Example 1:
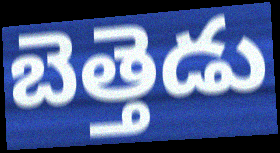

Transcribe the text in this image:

బెత్తెడు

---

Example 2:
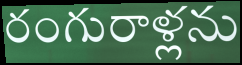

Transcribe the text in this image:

రంగురాళ్లను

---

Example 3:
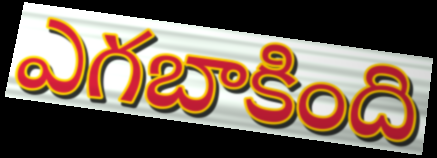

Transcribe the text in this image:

ఎగబాకింది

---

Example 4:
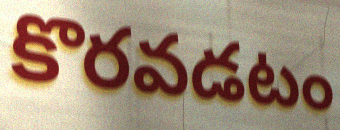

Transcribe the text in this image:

కొరవడటం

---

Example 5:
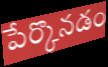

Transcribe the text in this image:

పేర్కొనడం